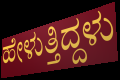
ಹೇಳುತ್ತಿದ್ದಳು